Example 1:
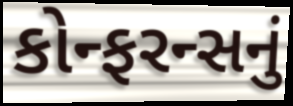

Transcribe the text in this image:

કોન્ફરન્સનું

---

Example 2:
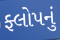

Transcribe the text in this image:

ફ્લોપનું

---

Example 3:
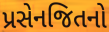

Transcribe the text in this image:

પ્રસેનજિતનો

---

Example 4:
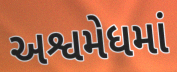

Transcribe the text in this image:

અશ્વમેધમાં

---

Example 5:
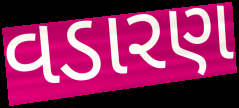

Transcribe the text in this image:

વડારણ